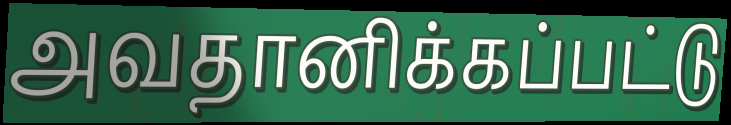
அவதானிக்கப்பட்டு